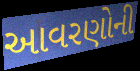
આવરણોની